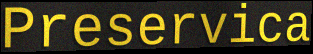
Preservica